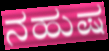
ನಹುಷ